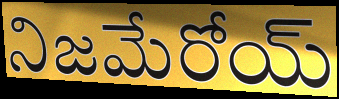
నిజమేరోయ్